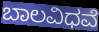
ಬಾಲವಿಧವೆ